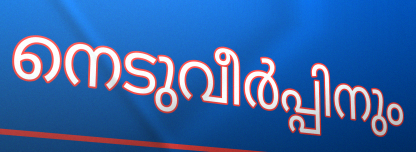
നെടുവീർപ്പിനും